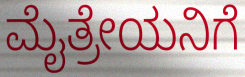
ಮೈತ್ರೇಯನಿಗೆ